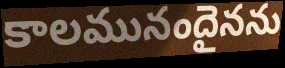
కాలమునందైనను